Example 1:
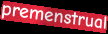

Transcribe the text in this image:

premenstrual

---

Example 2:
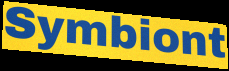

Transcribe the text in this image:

Symbiont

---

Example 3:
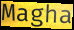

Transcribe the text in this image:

Magha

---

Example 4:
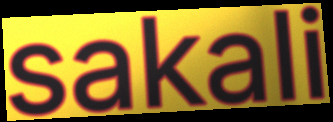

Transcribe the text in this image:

sakali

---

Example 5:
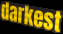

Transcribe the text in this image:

darkest